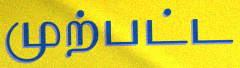
முற்பட்ட